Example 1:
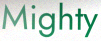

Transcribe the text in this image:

Mighty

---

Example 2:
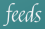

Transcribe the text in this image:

feeds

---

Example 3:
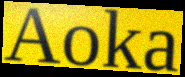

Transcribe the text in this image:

Aoka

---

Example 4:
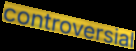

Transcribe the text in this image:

controversial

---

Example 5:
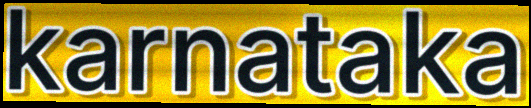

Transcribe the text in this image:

karnataka